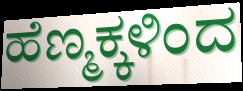
ಹೆಣ್ಮಕ್ಕಳಿಂದ